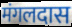
मंगलदास